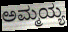
ಅಮ್ಮಯ್ಯ